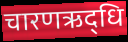
चारणऋद्धि